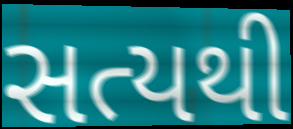
સત્યથી